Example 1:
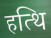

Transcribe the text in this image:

हत्थि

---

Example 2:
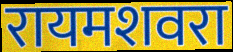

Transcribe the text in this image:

रायमशवरा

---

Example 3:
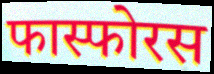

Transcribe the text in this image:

फास्‍फोरस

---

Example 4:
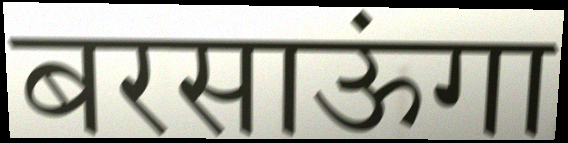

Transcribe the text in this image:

बरसाऊंगा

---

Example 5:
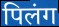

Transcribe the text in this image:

पिलंग